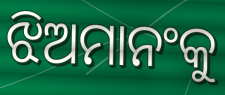
ଝିଅମାନଂକୁ